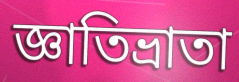
জ্ঞাতিভ্রাতা